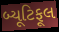
બ્યૂટિફૂલ